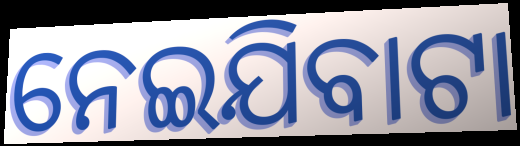
ନେଇଯିବାଟା